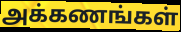
அக்கணங்கள்